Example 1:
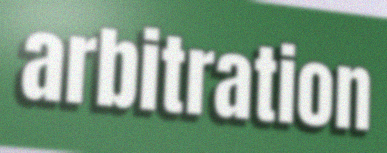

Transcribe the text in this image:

arbitration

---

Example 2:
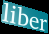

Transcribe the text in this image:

liber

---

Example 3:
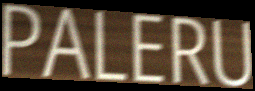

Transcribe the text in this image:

PALERU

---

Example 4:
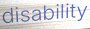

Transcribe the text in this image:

disability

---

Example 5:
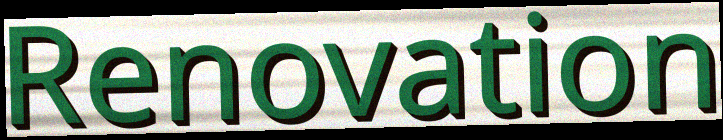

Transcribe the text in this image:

Renovation